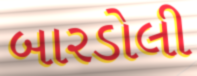
બારડોલી